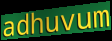
adhuvum